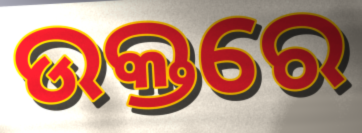
ଉକ୍ତରେ